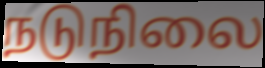
நடுநிலை